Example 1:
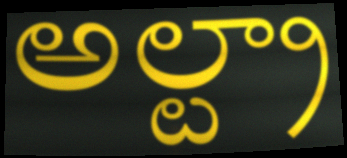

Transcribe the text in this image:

అల్ట్రా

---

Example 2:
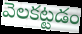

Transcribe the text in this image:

వెలకట్టడం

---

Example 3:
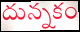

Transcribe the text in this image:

దున్నకం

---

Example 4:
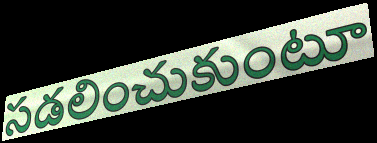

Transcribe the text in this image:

సడలించుకుంటూ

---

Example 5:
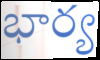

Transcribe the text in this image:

భార్య